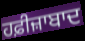
ਹਫ਼ੀਜ਼ਾਬਾਦ